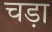
चड़ा